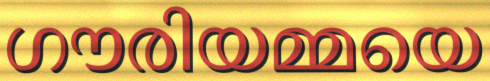
ഗൗരിയമ്മയെ